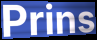
Prins